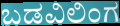
ಬಡವಿಲಿಂಗ